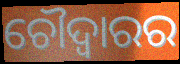
ଚୌଦ୍ୱାରର